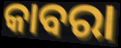
କାବରା